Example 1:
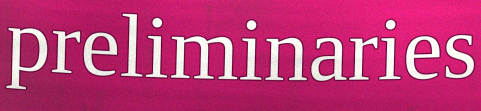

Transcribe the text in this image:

preliminaries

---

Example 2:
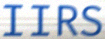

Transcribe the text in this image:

IIRS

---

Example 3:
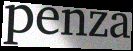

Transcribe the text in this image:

penza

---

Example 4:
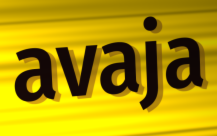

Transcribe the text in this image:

avaja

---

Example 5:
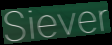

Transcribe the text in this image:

Siever